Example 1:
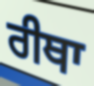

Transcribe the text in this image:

ਰੀਥਾ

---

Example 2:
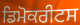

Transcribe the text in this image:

ਡਿਮੋਕਰੀਟਸ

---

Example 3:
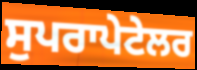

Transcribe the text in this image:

ਸੁਪਰਾਪੇਟੇਲਰ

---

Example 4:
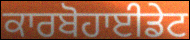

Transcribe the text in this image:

ਕਾਰਬੋਹਾਈਡੇਟ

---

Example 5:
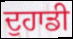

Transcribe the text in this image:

ਦੁਹਾਡੀ